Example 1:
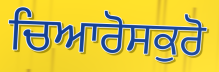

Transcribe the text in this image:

ਚਿਆਰੋਸਕੁਰੋ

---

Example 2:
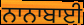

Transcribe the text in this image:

ਨਾਨਾਬਾਈ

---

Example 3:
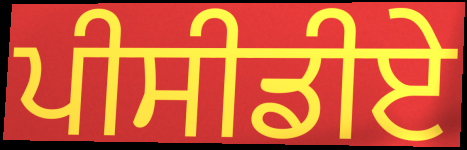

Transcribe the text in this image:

ਪੀਸੀਡੀਏ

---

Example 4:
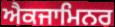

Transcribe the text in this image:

ਐਕਜਾਮਿਨਰ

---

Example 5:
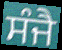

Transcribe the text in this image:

ਸੰਜੈ